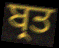
ਬ੍ਰਤ